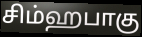
சிம்ஹபாகு